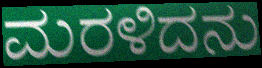
ಮರಳಿದನು